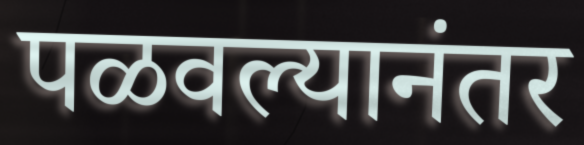
पळवल्यानंतर